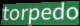
torpedo